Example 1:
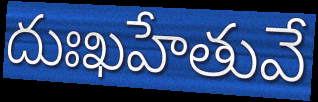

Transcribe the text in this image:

దుఃఖహేతువే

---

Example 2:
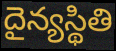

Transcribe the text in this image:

దైన్యస్థితి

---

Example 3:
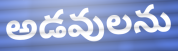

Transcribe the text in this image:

అడవులను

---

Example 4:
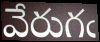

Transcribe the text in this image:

వేరుగఁ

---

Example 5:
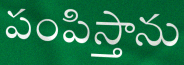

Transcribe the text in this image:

పంపిస్తాను